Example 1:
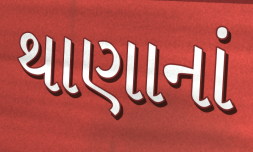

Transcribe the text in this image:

થાણાનાં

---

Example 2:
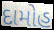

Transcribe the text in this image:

દામોહ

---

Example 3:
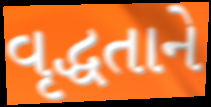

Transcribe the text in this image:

વૃદ્ધતાને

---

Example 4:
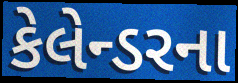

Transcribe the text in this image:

કેલેન્ડરના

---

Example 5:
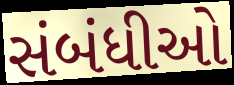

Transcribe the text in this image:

સંબંધીઓ